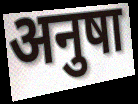
अनुषा